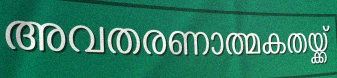
അവതരണാത്മകതയ്ക്ക്